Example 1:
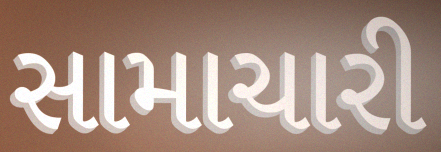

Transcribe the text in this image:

સામાચારી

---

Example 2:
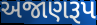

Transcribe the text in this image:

અજાણરૂપ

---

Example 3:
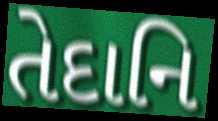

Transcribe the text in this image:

તેદાનિ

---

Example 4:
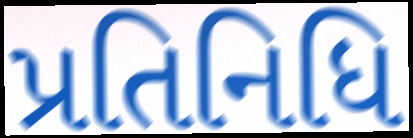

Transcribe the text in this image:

પ્રતિનિધિ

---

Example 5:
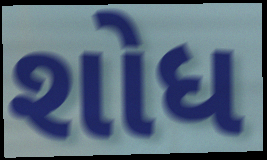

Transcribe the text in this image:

શોધ